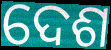
ଦେଶ